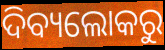
ଦିବ୍ୟଲୋକରୁ